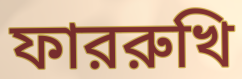
ফাররুখি